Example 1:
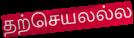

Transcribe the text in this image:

தற்செயலல்ல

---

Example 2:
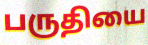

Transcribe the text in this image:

பருதியை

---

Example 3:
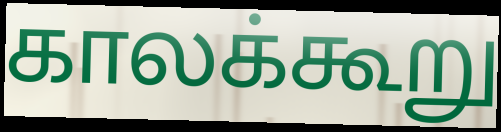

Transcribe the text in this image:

காலக்கூறு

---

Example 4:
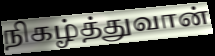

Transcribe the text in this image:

நிகழ்த்துவான்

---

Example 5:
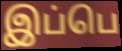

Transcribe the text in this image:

இப்பெ